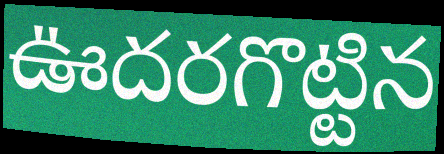
ఊదరగొట్టిన